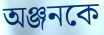
অঞ্জনকে